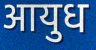
आयुध